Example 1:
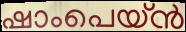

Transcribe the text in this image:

ഷാംപെയ്ൻ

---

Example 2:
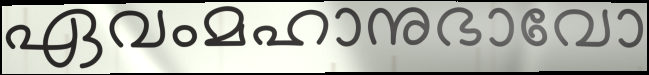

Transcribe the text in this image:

ഏവംമഹാനുഭാവോ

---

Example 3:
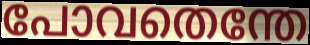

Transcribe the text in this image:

പോവതെന്തേ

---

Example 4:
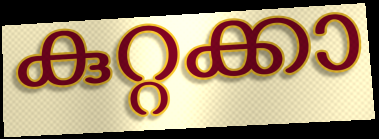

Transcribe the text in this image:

കുറ്റക്കാ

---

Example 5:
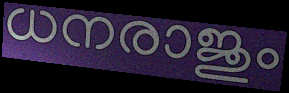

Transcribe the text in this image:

ധനരാജും